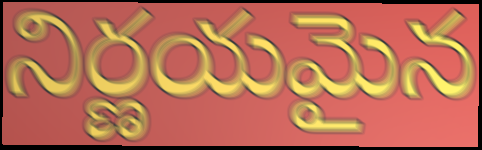
నిర్ణయమైన